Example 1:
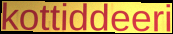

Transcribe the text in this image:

kottiddeeri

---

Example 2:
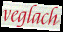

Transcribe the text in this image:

veglach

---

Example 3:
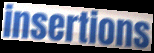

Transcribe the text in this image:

insertions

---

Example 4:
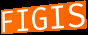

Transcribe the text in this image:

FIGIS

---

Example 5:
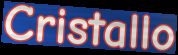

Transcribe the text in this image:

Cristallo